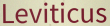
Leviticus